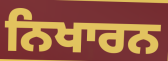
ਨਿਖਾਰਨ